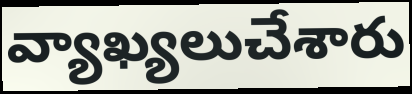
వ్యాఖ్యలుచేశారు